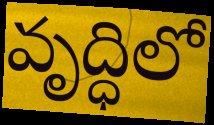
వృద్ధిలో